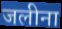
जलीना